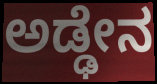
ಅಡ್ಢೇನ